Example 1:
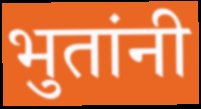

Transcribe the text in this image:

भुतांनी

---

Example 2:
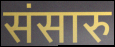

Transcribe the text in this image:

संसारु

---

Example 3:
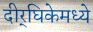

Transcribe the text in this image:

दीर्घिकेमध्ये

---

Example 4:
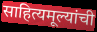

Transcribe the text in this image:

साहित्यमूल्यांची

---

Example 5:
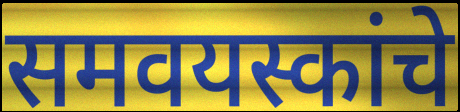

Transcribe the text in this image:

समवयस्कांचे